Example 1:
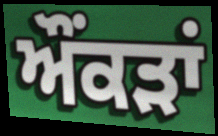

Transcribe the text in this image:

ਔਂਕੜਾਂ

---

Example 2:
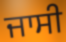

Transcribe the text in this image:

ਜਾਸੀ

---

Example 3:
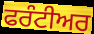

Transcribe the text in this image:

ਫਰੰਟੀਅਰ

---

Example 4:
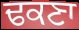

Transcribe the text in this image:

ਢਕਣਾ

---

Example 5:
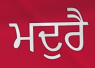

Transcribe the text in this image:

ਮਦੁਰੈ